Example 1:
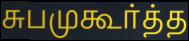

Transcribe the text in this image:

சுபமுகூர்த்த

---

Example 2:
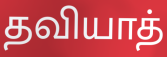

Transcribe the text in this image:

தவியாத்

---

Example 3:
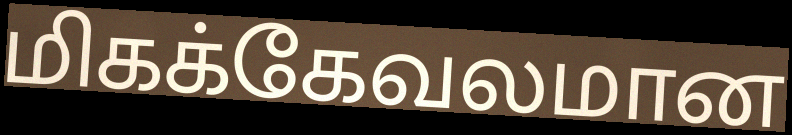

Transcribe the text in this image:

மிகக்கேவலமான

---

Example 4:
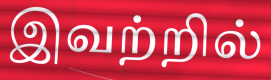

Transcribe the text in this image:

இவற்றில்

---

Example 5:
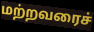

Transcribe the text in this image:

மற்றவரைச்